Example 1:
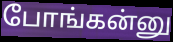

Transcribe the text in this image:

போங்கன்னு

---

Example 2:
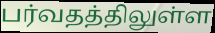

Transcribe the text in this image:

பர்வதத்திலுள்ள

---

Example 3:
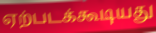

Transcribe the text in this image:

ஏற்படக்கூடியது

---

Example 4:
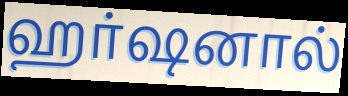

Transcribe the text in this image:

ஹர்ஷனால்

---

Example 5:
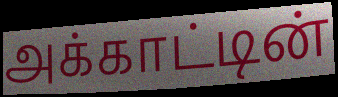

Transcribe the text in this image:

அக்காட்டின்